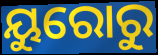
ୟୁରୋରୁ